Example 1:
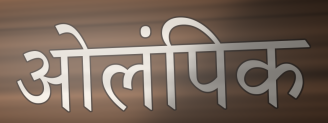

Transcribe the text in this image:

ओलंपिक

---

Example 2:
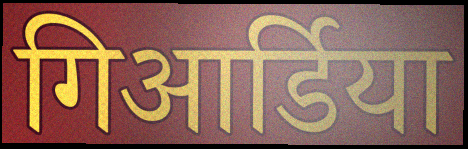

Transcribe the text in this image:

गिआर्डिया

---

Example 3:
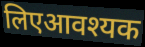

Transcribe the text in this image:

लिएआवश्यक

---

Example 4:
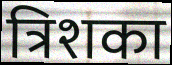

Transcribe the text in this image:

त्रिशका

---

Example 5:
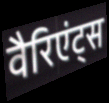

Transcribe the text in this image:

वैरिएंट्स